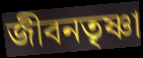
জীবনতৃষ্ণা